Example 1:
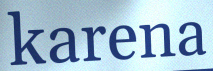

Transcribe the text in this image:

karena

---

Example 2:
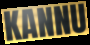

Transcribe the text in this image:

KANNU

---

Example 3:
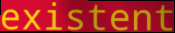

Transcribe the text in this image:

existent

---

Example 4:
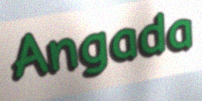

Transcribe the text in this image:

Angada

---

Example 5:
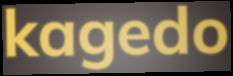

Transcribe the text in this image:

kagedo